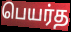
பெயர்த